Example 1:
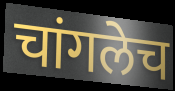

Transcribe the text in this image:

चांगलेच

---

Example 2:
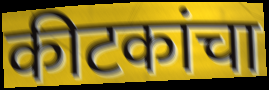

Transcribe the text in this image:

कीटकांचा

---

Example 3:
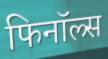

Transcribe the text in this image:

फिनॉल्स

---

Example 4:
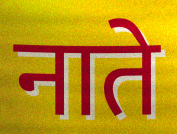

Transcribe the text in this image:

नाते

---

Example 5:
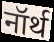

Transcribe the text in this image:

नॉर्थ